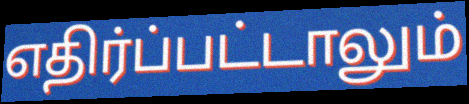
எதிர்ப்பட்டாலும்